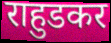
राहुडकर